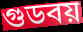
গুডবয়